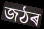
জঠৰ